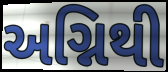
અગ્નિથી